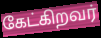
கேட்கிறவர்